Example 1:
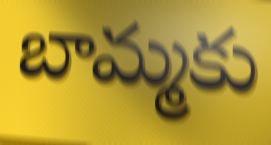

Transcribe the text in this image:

బామ్మకు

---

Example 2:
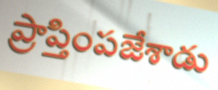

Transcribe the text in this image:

ప్రాప్తింపజేశాడు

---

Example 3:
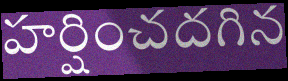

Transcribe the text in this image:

హర్షించదగిన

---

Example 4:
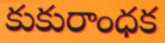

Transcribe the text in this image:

కుకురాంధక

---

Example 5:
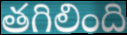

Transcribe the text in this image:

తగిలింది